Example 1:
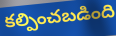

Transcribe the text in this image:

కల్పించబడింది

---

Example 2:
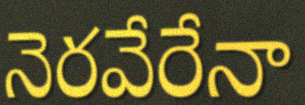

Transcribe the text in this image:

నెరవేరేనా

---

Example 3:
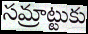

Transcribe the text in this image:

సమ్రాట్టుకు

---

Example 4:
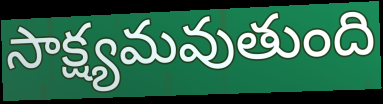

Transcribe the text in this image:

సాక్ష్యమవుతుంది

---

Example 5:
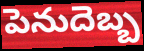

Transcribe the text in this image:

పెనుదెబ్బ